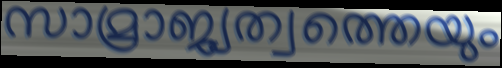
സാമ്രാജ്യത്വത്തെയും